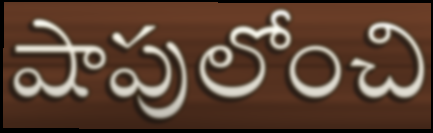
షాపులోంచి